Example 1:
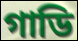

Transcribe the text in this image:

গাডি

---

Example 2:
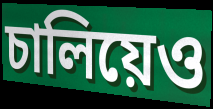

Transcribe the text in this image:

চালিয়েও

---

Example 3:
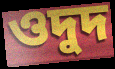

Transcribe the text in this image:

ওদুদ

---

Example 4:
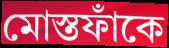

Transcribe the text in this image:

মোস্তফাঁকে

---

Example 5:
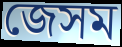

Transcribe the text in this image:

জেসম